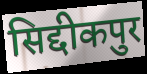
सिद्दीकपुर